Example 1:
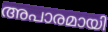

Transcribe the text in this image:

അപാരമായി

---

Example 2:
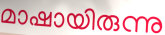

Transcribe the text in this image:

മാഷായിരുന്നു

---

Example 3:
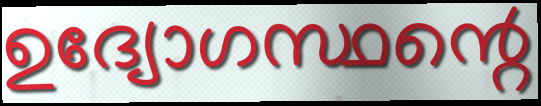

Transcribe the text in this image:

ഉദ്യോഗസ്ഥന്റെ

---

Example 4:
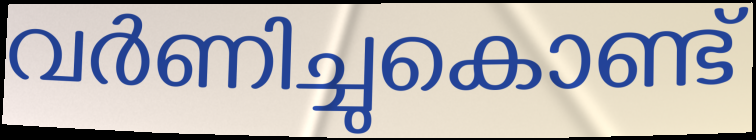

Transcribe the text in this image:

വർണിച്ചുകൊണ്ട്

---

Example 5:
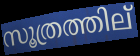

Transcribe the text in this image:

സൂത്രത്തില്